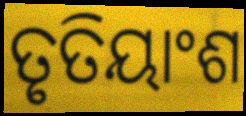
ତୃତିୟାଂଶ